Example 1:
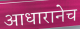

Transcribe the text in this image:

आधारानेच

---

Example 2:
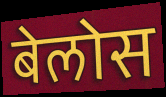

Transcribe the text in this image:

बेलोस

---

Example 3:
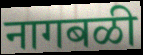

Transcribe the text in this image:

नागबळी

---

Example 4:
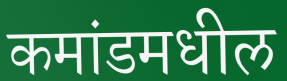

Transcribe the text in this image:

कमांडमधील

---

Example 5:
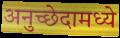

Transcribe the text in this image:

अनुच्छेदामध्ये